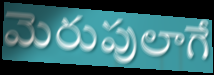
మెరుపులాగే